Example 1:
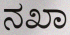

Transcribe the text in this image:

ನಖಾ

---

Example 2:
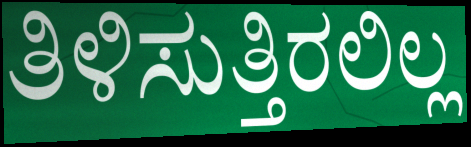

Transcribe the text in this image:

ತಿಳಿಸುತ್ತಿರಲಿಲ್ಲ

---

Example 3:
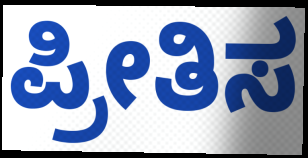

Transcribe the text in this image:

ಪ್ರೀತಿಸ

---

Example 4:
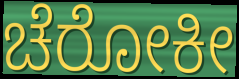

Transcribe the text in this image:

ಚೆರೋಕೀ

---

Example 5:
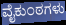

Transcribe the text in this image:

ವೈಕುಂಠಗಳು